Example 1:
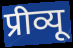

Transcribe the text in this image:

प्रीव्यू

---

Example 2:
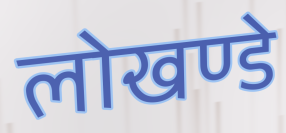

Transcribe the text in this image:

लोखण्डे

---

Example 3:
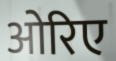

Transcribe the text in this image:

ओरिए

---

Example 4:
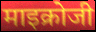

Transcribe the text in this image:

माइक्रोजी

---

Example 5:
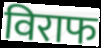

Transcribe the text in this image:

विराफ